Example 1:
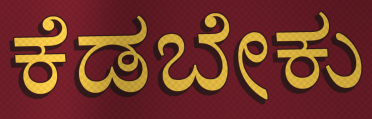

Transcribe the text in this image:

ಕೆಡಬೇಕು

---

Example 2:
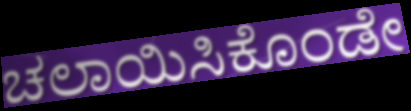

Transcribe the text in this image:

ಚಲಾಯಿಸಿಕೊಂಡೇ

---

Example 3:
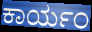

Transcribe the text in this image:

ಕಾರ್ಯಂ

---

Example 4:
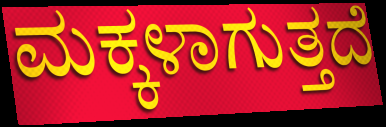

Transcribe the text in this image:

ಮಕ್ಕಳಾಗುತ್ತದೆ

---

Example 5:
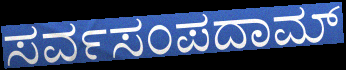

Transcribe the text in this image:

ಸರ್ವಸಂಪದಾಮ್